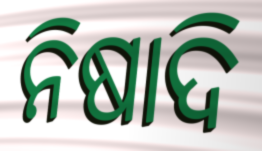
ନିଷାଦି